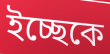
ইচ্ছেকে